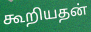
கூறியதன்